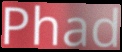
Phad